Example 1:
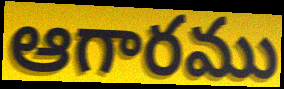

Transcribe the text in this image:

ఆగారము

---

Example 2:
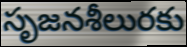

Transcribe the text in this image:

సృజనశీలురకు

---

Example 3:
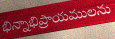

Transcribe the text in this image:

భిన్నాభిప్రాయములను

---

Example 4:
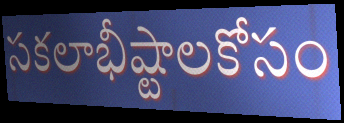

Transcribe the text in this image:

సకలాభీష్టాలకోసం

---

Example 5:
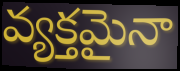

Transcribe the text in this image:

వ్యక్తమైనా